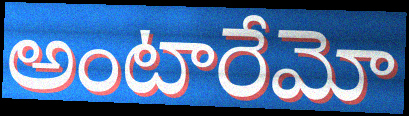
అంటారేమో